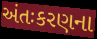
અંતઃકરણના